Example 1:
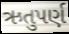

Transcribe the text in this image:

ઋતુપર્ણ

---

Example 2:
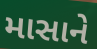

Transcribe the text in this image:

માસાને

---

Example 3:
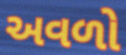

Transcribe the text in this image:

અવળો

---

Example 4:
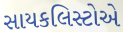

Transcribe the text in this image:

સાયકલિસ્ટોએ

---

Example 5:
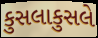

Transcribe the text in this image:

કુસલાકુસલે